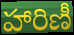
హారిణీ